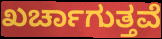
ಖರ್ಚಾಗುತ್ತವೆ